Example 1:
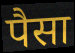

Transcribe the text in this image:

पैसा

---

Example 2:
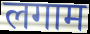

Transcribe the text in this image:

लगाम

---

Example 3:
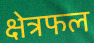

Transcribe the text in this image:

क्षेत्रफल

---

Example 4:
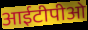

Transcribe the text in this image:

आईटीपीओ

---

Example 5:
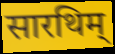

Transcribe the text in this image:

सारथिम्